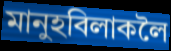
মানুহবিলাকলৈ